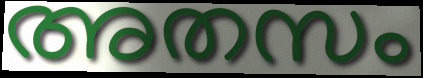
അതസം